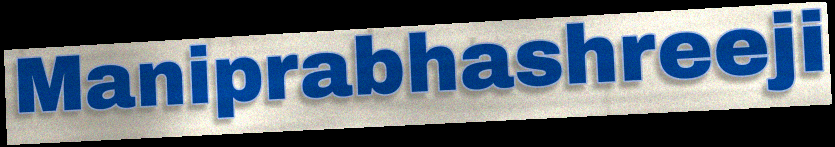
Maniprabhashreeji